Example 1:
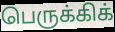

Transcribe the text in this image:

பெருக்கிக்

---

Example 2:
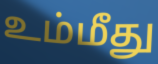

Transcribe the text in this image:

உம்மீது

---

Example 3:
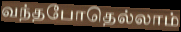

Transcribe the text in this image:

வந்தபோதெல்லாம்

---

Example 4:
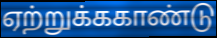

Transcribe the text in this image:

ஏற்றுக்ககாண்டு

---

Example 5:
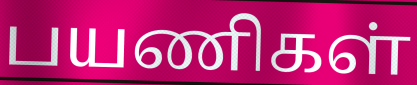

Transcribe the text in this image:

பயணிகள்